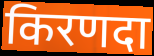
किरणदा